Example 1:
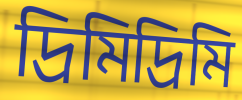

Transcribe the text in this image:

দ্রিমিদ্রিমি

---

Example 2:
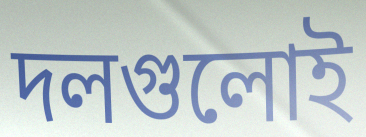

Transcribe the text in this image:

দলগুলোই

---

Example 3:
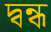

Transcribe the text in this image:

দ্বন্ধ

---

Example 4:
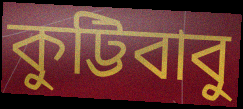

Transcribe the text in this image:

কুট্টিবাবু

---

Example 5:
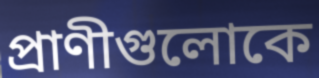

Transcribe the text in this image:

প্রাণীগুলোকে